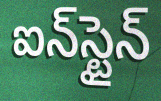
ఐన్‌స్టైన్